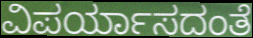
ವಿಪರ್ಯಾಸದಂತೆ